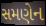
સમણેન